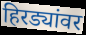
हिरड्यांवर